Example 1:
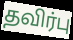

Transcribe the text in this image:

தவிர்பு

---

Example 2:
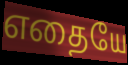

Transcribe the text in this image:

எதையே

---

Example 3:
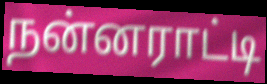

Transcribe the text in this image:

நன்னராட்டி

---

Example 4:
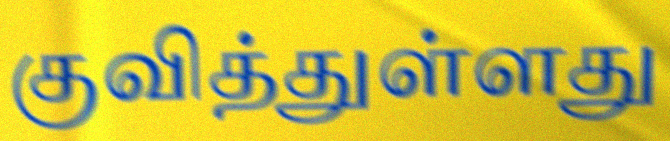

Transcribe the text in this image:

குவித்துள்ளது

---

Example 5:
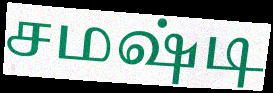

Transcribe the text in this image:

சமஷ்டி